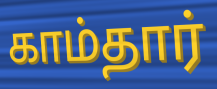
காம்தார்